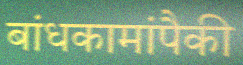
बांधकामांपैकी